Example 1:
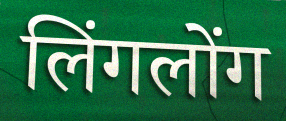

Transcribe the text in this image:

लिंगलोंग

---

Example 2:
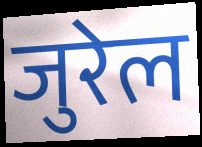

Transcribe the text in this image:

जुरेल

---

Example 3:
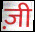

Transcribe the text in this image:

ज़ी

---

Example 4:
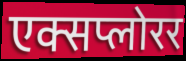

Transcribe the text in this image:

एक्सप्लोरर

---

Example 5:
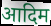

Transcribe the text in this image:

आदिम